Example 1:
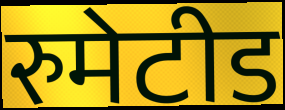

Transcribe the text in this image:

रुमेटीड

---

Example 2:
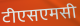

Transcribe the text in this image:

टीएसएमसी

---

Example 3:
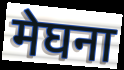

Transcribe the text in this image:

मेघना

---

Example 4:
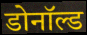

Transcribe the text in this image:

डोनॉल्ड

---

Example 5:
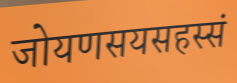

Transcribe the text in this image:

जोयणसयसहस्सं